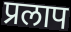
प्रलाप